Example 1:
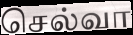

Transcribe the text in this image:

செல்வா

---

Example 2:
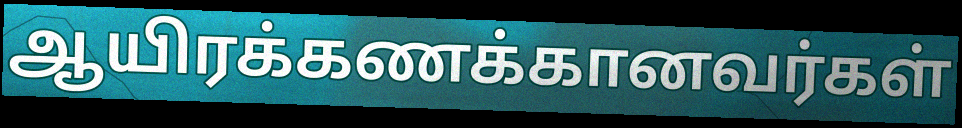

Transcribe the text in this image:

ஆயிரக்கணக்கானவர்கள்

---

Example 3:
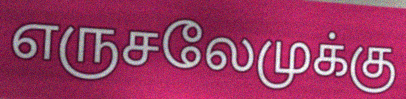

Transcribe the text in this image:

எருசலேமுக்கு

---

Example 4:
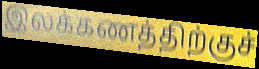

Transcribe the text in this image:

இலக்கணத்திற்குச்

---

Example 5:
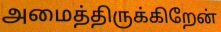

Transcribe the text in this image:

அமைத்திருக்கிறேன்